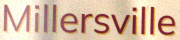
Millersville